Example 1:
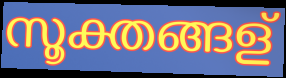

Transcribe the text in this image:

സൂക്തങ്ങള്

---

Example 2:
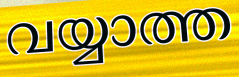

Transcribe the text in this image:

വയ്യാത്ത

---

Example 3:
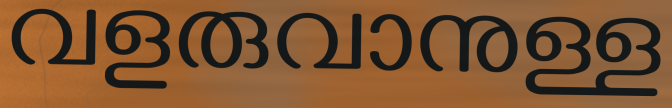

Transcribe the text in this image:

വളരുവാനുള്ള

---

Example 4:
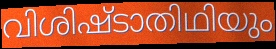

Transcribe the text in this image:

വിശിഷ്ടാതിഥിയും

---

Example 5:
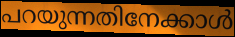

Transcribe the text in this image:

പറയുന്നതിനേക്കാൾ